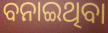
ବନାଇଥିବା